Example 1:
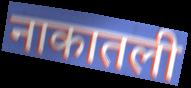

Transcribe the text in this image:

नाकातली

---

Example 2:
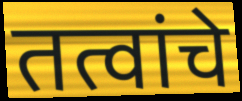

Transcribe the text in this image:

तत्वांचे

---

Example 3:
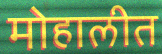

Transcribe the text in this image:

मोहालीत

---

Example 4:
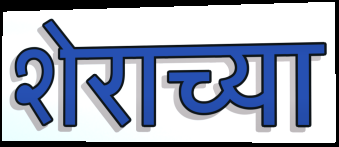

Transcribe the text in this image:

शेराच्या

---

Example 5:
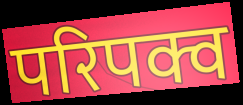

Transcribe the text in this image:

परिपक्व